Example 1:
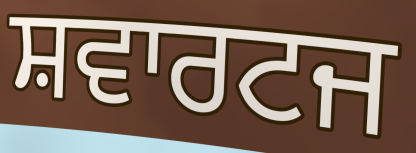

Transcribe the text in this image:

ਸ਼ਵਾਰਟਜ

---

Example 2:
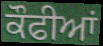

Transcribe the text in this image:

ਕੌਫੀਆਂ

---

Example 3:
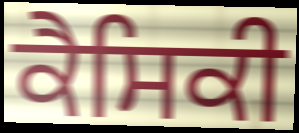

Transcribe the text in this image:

ਕੈਸਿਕੀ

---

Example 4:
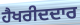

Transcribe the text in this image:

ਹੈਖਰੀਦਦਾਰ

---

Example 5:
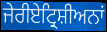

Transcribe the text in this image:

ਜੇਰੀਏਟ੍ਰਿਸ਼ੀਅਨਾਂ